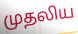
முதலிய